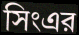
সিংএর